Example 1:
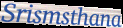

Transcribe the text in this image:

Srismsthana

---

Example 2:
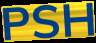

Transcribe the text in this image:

PSH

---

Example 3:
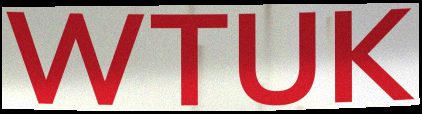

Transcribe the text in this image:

WTUK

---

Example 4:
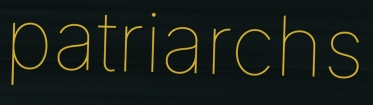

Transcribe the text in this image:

patriarchs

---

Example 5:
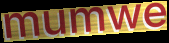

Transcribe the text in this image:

mumwe